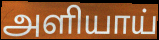
அளியாய்